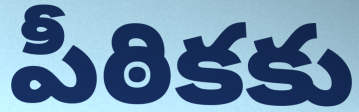
పీఠికకు